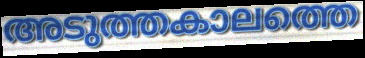
അടുത്തകാലത്തെ